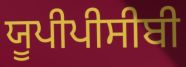
ਯੂਪੀਪੀਸੀਬੀ